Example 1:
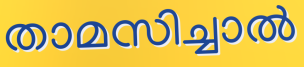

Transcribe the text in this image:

താമസിച്ചാൽ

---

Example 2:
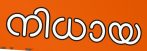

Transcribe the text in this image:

നിധായ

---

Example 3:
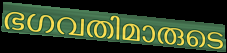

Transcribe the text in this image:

ഭഗവതിമാരുടെ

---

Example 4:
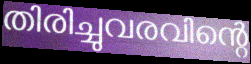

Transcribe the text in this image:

തിരിച്ചുവരവിന്റെ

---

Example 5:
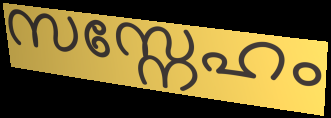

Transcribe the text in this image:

സസ്നേഹം